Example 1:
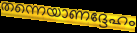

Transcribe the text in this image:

തന്നെയാണദ്ദേഹം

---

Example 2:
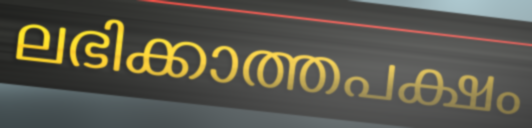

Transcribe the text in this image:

ലഭിക്കാത്തപക്ഷം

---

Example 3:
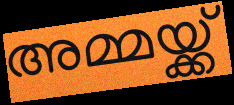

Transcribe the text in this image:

അമ്മയ്ക്ക്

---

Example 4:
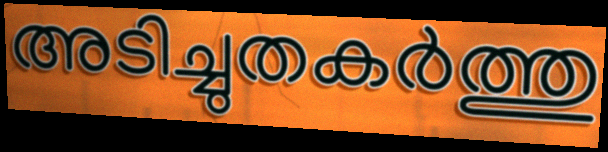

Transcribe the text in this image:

അടിച്ചുതകർത്തു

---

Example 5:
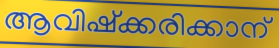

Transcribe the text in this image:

ആവിഷ്ക്കരിക്കാന്